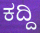
ಕದ್ದಿ